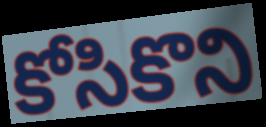
కోసికొని